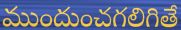
ముందుంచగలిగితే